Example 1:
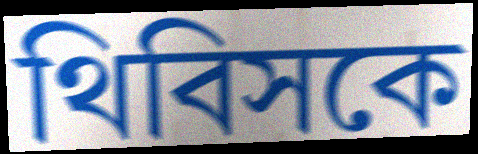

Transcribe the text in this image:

থিবিসকে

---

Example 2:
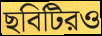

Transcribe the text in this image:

ছবিটিরও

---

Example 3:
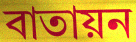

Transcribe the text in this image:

বাতায়ন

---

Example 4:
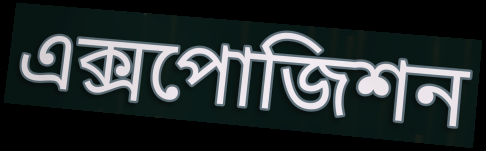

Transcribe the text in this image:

এক্সপোজিশন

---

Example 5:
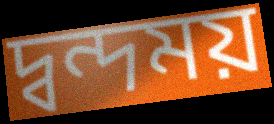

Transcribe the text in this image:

দ্বন্দময়